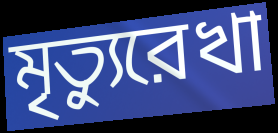
মৃত্যুরেখা